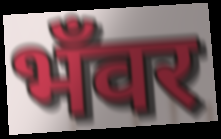
भँवर